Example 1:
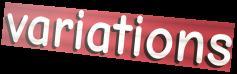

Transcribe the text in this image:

variations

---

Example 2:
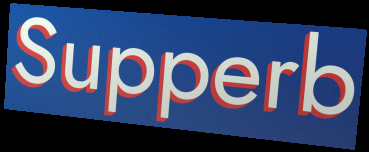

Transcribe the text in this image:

Supperb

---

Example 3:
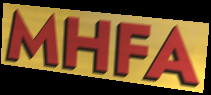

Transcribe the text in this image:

MHFA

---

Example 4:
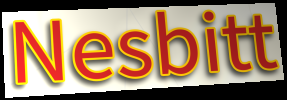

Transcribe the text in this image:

Nesbitt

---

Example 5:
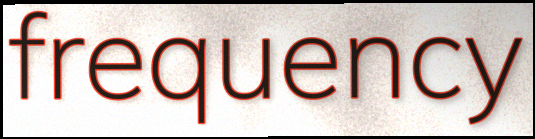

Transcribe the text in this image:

frequency